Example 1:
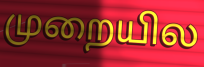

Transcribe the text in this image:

முறையில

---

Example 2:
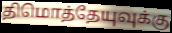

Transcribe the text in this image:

திமொத்தேயுவுக்கு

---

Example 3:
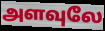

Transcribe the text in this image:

அளவுலே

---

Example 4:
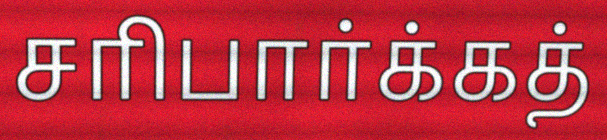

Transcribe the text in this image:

சரிபார்க்கத்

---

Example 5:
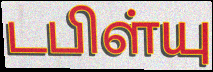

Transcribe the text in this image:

டபிள்யு